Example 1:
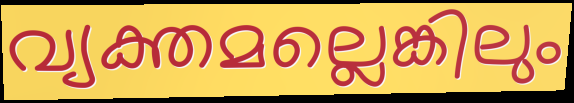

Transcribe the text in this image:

വ്യക്തമല്ലെങ്കിലും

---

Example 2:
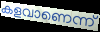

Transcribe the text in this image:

കളവാണെന്ന്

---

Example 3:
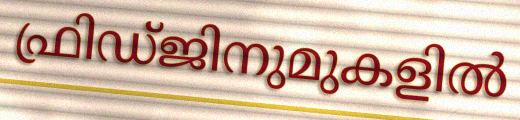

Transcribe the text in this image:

ഫ്രിഡ്ജിനുമുകളിൽ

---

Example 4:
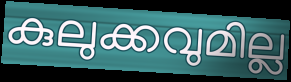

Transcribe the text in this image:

കുലുക്കവുമില്ല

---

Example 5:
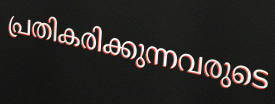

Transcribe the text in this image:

പ്രതികരിക്കുന്നവരുടെ